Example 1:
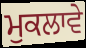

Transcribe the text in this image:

ਮੁਕਲਾਵੇ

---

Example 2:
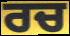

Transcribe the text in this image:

ਰਚ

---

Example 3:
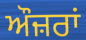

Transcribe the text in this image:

ਔਜ਼ਰਾਂ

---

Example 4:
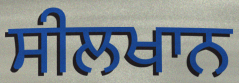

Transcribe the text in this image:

ਸੀਲਖਾਨ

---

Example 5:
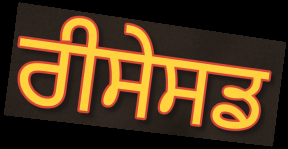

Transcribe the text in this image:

ਰੀਸੇਸਡ